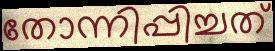
തോന്നിപ്പിച്ചത്